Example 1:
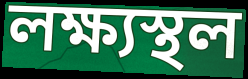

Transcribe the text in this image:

লক্ষ্যস্থল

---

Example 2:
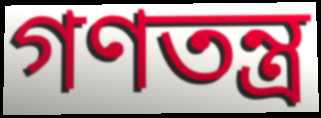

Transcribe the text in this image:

গণতন্ত্র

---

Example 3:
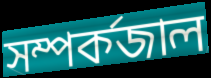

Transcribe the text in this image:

সম্পর্কজাল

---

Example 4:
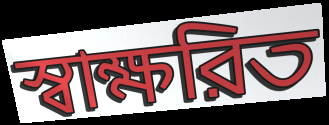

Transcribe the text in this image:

স্বাক্ষরিত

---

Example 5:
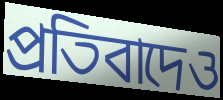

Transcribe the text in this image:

প্রতিবাদেও